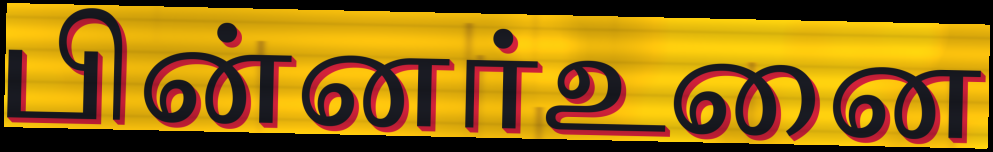
பின்னர்உனை